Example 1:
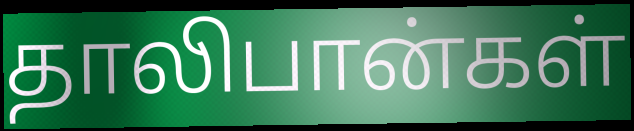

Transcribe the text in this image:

தாலிபான்கள்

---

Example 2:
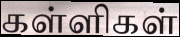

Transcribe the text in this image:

கள்ளிகள்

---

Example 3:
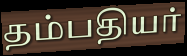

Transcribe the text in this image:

தம்பதியர்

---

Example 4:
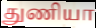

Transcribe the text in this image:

துணியா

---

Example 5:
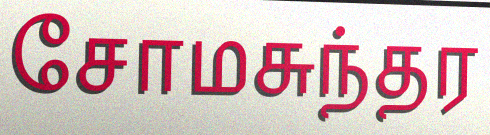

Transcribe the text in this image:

சோமசுந்தர